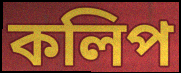
কলিপ